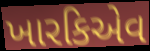
ખારકિએવ